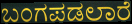
ಬಂಗಪಡಲಾರೆ